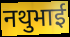
नथुभाई